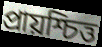
প্রায়শ্চিত্ত